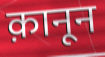
क़ानून